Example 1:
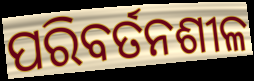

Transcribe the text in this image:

ପରିବର୍ତନଶୀଳ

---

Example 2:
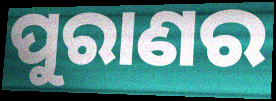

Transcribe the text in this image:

ପୁରାଣର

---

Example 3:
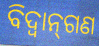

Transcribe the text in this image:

ବିଦ୍ୱାନ୍‌ଗଣ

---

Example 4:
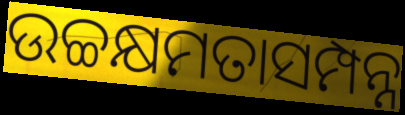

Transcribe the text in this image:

ଉଚ୍ଚକ୍ଷମତାସମ୍ପନ୍ନ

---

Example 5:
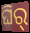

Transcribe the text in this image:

ଘିର୍